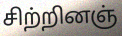
சிற்றினஞ்